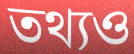
তথ্যও